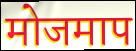
मोजमाप